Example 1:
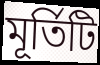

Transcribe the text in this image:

মূর্তিটি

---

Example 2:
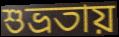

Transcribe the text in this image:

শুভ্রতায়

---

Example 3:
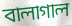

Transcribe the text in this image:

বালাগাল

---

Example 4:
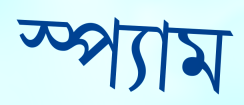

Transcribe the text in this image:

স্প্যাম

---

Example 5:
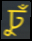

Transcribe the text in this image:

ঢুঁ